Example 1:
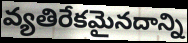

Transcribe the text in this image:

వ్యతిరేకమైనదాన్ని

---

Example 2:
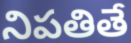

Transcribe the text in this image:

నిపతితే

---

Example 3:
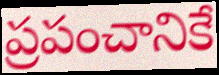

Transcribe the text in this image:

ప్రపంచానికే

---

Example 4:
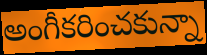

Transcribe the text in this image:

అంగీకరించకున్నా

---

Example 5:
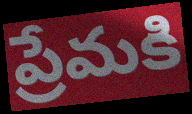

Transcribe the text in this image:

ప్రేమకి